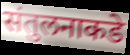
संतुलनाकडे